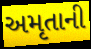
અમૃતાની